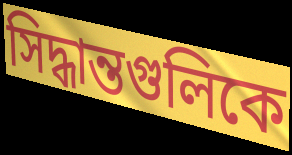
সিদ্ধান্তগুলিকে